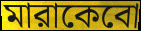
মারাকেবো